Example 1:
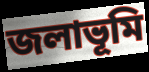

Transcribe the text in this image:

জলাভূমি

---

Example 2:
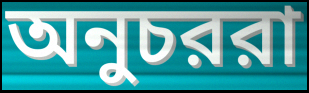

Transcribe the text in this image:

অনুচররা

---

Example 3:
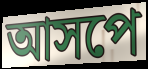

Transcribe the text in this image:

আসপে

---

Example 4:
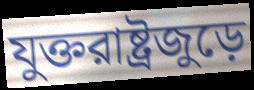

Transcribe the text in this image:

যুক্তরাষ্ট্রজুড়ে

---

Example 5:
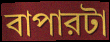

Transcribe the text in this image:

বাপারটা